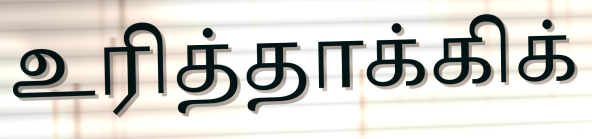
உரித்தாக்கிக்